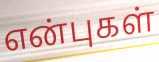
என்புகள்